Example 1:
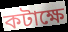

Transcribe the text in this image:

কটাক্ষে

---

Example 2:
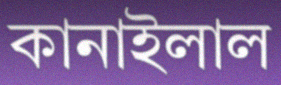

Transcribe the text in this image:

কানাইলাল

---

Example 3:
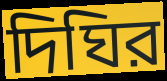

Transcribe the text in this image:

দিঘির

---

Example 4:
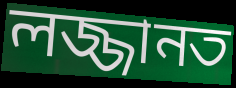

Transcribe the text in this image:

লজ্জানত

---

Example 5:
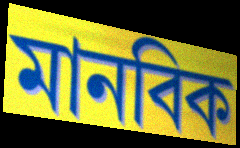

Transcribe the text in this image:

মানবিক